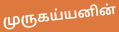
முருகய்யனின்